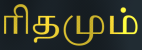
ரிதமும்